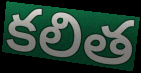
కలిత